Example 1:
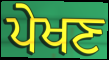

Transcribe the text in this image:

ਪੇਖਣ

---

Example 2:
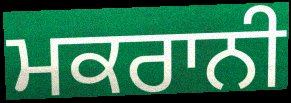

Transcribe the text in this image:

ਮਕਰਾਨੀ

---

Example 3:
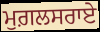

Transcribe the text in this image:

ਮੁਗ਼ਲਸਰਾਏ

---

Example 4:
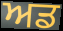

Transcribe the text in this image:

ਅਡ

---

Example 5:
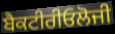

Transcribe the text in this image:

ਬੈਕਟੀਰੀਓਲੋਜੀ